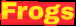
Frogs